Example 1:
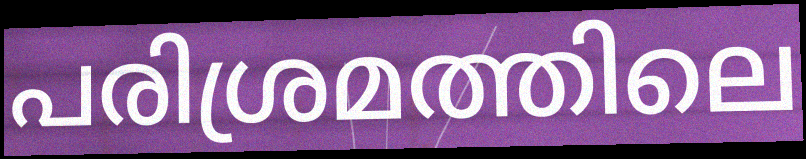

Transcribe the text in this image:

പരിശ്രമത്തിലെ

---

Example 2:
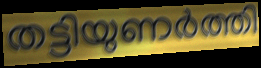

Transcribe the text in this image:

തട്ടിയുണർത്തി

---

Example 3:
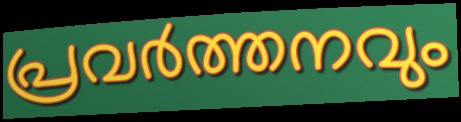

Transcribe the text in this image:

പ്രവർത്തനവും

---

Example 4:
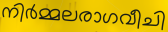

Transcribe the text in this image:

നിർമ്മലരാഗവീചി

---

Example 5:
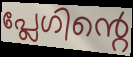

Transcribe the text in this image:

പ്ലേഗിന്റെ